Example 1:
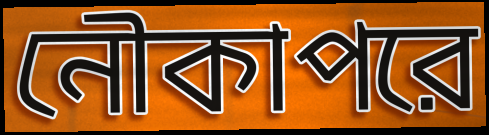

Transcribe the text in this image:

নৌকাপরে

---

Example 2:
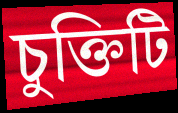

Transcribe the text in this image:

চুক্তিটি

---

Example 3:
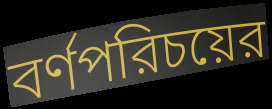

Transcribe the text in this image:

বর্ণপরিচয়ের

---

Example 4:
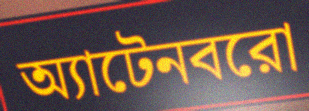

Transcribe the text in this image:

অ্যাটেনবরো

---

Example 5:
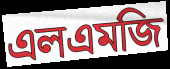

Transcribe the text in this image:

এলএমজি